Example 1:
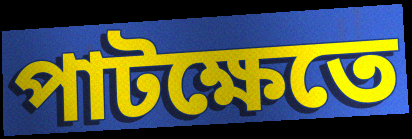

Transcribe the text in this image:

পাটক্ষেতে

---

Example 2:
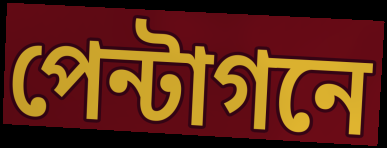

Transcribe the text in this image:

পেন্টাগনে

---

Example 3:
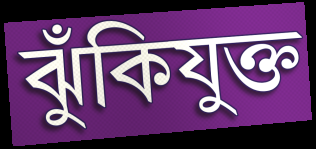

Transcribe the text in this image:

ঝুঁকিযুক্ত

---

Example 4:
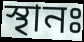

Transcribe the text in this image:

স্থানঃ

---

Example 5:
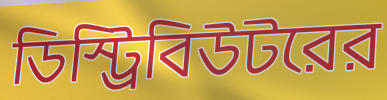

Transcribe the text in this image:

ডিস্ট্রিবিউটরের